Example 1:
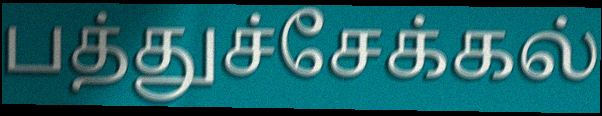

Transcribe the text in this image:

பத்துச்சேக்கல்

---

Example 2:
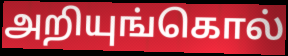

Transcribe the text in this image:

அறியுங்கொல்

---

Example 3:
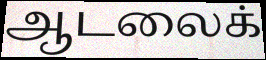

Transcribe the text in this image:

ஆடலைக்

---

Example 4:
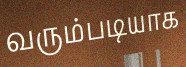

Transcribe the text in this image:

வரும்படியாக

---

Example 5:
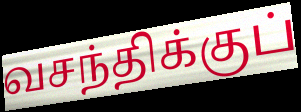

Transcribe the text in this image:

வசந்திக்குப்